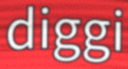
diggi